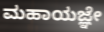
ಮಹಾಯಜ್ಞೇ